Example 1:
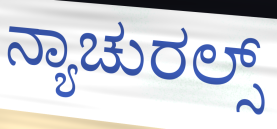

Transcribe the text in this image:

ನ್ಯಾಚುರಲ್ಸ್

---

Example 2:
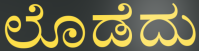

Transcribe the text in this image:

ಲೊಡೆದು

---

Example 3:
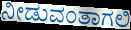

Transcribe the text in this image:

ನೀಡುವಂತಾಗಲಿ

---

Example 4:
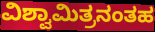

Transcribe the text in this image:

ವಿಶ್ವಾಮಿತ್ರನಂತಹ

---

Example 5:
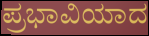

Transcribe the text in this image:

ಪ್ರಭಾವಿಯಾದ